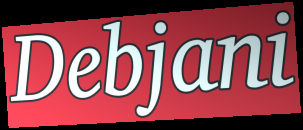
Debjani